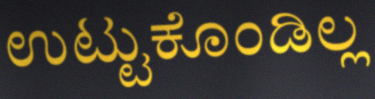
ಉಟ್ಟುಕೊಂಡಿಲ್ಲ